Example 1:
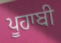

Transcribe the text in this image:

ਪੂਹਾਬੀ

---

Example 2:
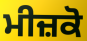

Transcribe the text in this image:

ਮੀਜ਼ਕੋ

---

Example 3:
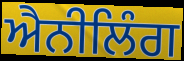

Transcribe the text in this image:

ਐਨੀਲਿੰਗ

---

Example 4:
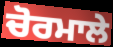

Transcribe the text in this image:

ਚੋਰਮਾਲੇ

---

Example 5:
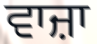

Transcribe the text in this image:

ਵਾਜ਼ਾ